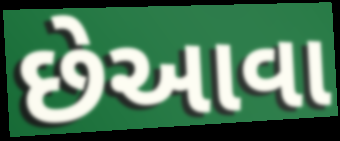
છેઆવા